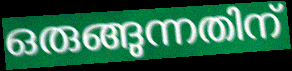
ഒരുങ്ങുന്നതിന്